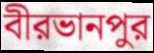
বীরভানপুর